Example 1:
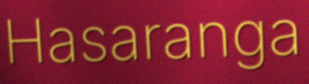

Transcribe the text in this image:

Hasaranga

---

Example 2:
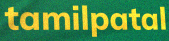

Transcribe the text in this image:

tamilpatal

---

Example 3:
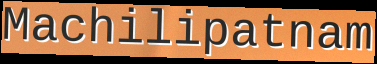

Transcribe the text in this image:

Machilipatnam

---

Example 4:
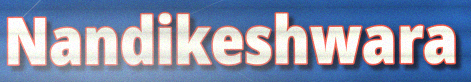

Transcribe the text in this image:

Nandikeshwara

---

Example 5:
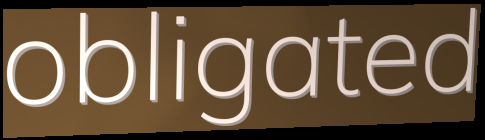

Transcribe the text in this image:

obligated